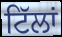
ਟਿੱਲਾਂ